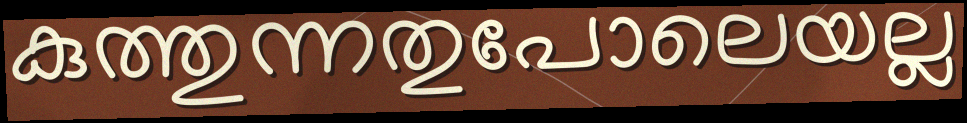
കുത്തുന്നതുപോലെയല്ല